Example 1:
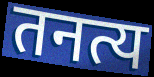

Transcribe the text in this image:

तनत्य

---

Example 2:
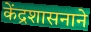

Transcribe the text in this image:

केंद्रशासनाने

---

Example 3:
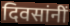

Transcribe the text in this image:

दिवसांनीं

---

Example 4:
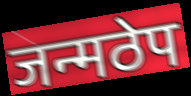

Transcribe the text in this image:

जन्मठेप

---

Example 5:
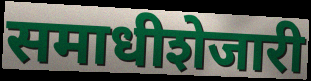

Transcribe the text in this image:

समाधीशेजारी